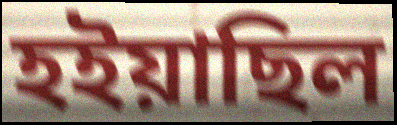
হইয়াছিল